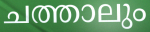
ചത്താലും